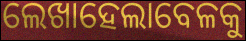
ଲେଖାହେଲାବେଳକୁ